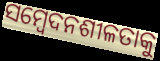
ସମ୍ବେଦନଶୀଳତାକୁ